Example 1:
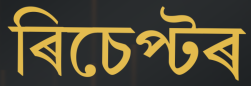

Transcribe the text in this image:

ৰিচেপ্টৰ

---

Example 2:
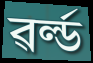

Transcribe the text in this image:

ৱৰ্ল্ড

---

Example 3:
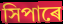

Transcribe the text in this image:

সিপাৰে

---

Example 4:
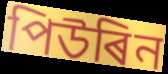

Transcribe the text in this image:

পিউৰিন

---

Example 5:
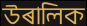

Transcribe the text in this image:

উৰালিক